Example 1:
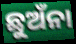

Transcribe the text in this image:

ଛୁଅଁନା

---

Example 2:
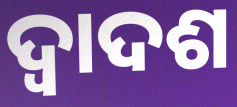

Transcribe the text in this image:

ଦ୍ବାଦଶ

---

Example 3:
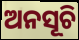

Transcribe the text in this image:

ଅନସୂଚି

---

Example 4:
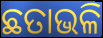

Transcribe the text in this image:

ଛତାଭଳି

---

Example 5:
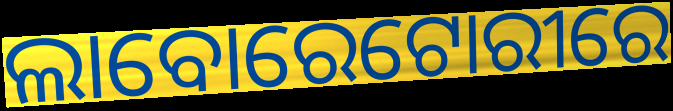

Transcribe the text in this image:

ଲାବୋରେଟୋରୀରେ